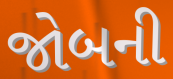
જોબની